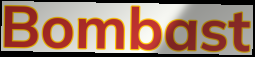
Bombast